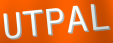
UTPAL